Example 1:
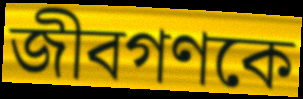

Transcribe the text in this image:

জীবগণকে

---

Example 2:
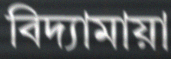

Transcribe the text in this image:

বিদ্যামায়া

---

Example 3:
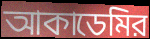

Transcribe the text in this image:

আকাডেমির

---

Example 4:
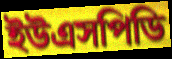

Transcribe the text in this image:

ইউএসপিডি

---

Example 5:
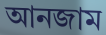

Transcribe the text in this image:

আনজাম